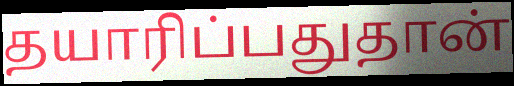
தயாரிப்பதுதான்